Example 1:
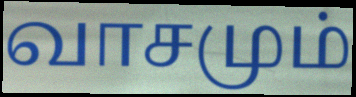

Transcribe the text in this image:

வாசமும்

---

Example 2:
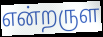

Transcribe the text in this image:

என்றருள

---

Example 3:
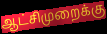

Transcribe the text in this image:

ஆட்சிமுறைக்கு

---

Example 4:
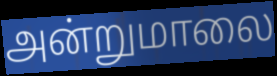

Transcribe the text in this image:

அன்றுமாலை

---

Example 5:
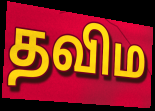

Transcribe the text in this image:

தவிம